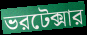
ভরটেক্সার